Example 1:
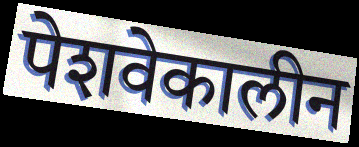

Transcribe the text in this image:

पेशवेकालीन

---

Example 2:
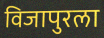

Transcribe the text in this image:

विजापुरला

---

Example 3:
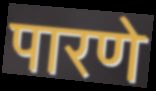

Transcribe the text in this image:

पारणे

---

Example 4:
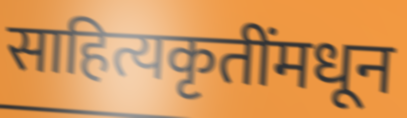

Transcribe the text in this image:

साहित्यकृतींमधून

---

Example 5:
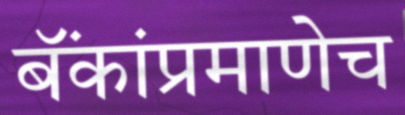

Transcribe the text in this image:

बॅंकांप्रमाणेच